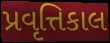
પ્રવૃત્તિકાલ